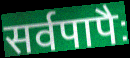
सर्वपापैः